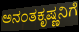
ಅನಂತಕೃಷ್ಣನಿಗೆ